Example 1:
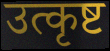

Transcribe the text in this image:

उत्कृष्ट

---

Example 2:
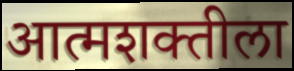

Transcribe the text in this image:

आत्मशक्तीला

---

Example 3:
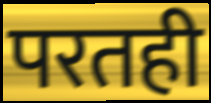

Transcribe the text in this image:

परतही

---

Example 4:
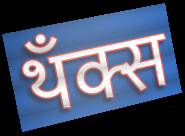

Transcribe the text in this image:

थँक्स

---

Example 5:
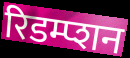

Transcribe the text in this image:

रिडम्प्शन